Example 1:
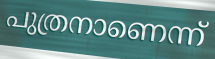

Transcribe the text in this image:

പുത്രനാണെന്ന്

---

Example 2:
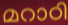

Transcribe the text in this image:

മറാഠി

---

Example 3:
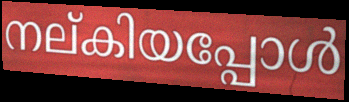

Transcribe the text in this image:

നല്കിയപ്പോൾ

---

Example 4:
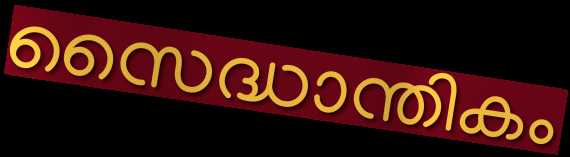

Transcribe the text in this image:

സൈദ്ധാന്തികം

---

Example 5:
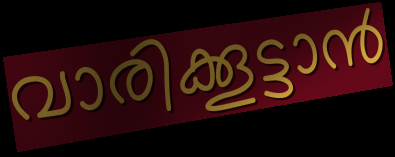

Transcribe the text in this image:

വാരിക്കൂട്ടാൻ